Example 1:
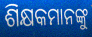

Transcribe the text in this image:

ଶିକ୍ଷକମାନଙ୍କୁ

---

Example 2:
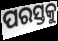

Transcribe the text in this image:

ପରସ୍ତକୁ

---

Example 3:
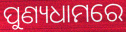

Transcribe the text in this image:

ପୁଣ୍ୟଧାମରେ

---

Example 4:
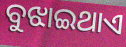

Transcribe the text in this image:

ବୁଝାଇଥାଏ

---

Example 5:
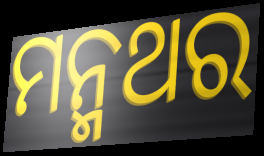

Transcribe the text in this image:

ମନ୍ମଥର